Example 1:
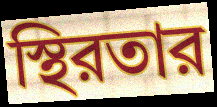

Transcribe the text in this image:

স্থিরতার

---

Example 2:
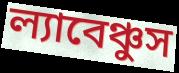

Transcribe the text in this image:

ল্যাবেঞ্চুস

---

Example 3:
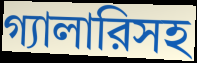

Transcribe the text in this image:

গ্যালারিসহ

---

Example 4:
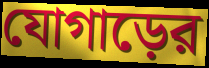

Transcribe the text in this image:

যোগাড়ের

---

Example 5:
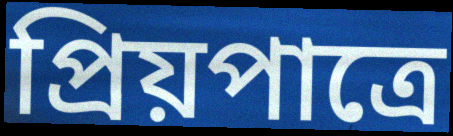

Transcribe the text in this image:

প্রিয়পাত্রে